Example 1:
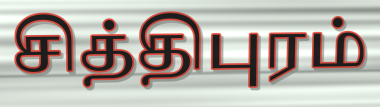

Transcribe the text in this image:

சித்திபுரம்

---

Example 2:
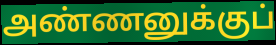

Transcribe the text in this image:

அண்ணனுக்குப்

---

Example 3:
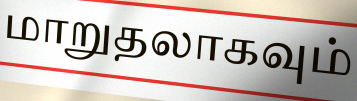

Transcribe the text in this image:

மாறுதலாகவும்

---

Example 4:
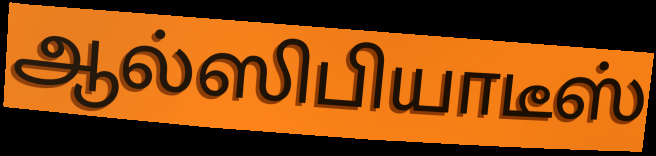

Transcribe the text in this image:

ஆல்ஸிபியாடீஸ்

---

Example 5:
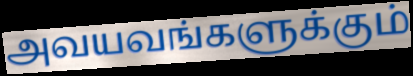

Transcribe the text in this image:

அவயவங்களுக்கும்